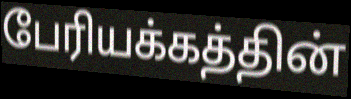
பேரியக்கத்தின்